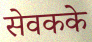
सेवकके